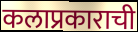
कलाप्रकाराची